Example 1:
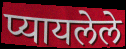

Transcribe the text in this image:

प्यायलेले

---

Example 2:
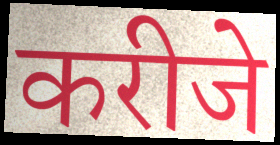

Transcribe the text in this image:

करीजे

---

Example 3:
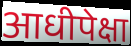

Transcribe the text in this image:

आधीपेक्षा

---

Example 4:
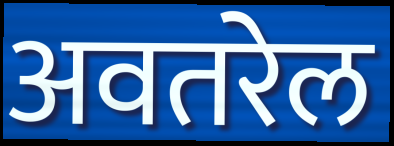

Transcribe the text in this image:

अवतरेल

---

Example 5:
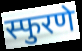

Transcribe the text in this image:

स्फुरणे